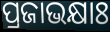
ପ୍ରଜାଭକ୍ଷାଃ